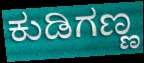
ಕುಡಿಗಣ್ಣ